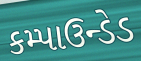
કમ્પાઉન્ડેડ